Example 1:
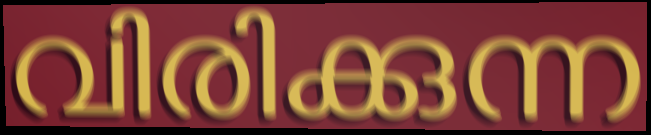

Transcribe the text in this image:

വിരിക്കുന്ന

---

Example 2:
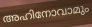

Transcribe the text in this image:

അഹിനോവാമും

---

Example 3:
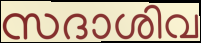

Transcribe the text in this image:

സദാശിവ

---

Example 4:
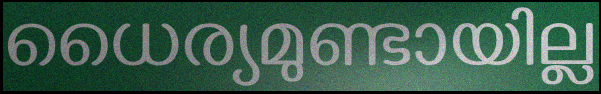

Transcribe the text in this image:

ധൈര്യമുണ്ടായില്ല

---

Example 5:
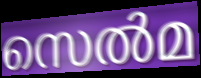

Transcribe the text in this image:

സെൽമ